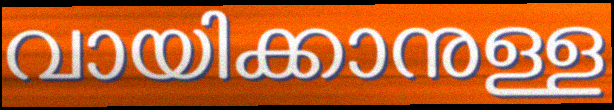
വായിക്കാനുള്ള